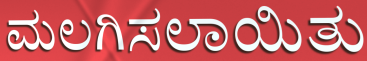
ಮಲಗಿಸಲಾಯಿತು